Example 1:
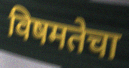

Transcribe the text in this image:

विषमतेचा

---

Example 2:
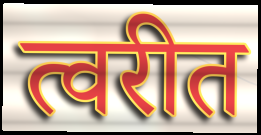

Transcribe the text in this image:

त्वरीत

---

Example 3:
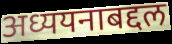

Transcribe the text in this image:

अध्ययनाबद्दल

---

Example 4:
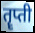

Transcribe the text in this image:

तॄप्ती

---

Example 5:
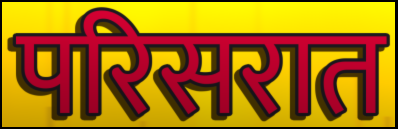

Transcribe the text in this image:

परिसरात